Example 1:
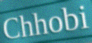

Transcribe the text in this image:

Chhobi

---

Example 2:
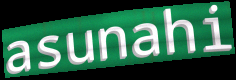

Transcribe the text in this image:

asunahi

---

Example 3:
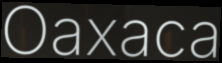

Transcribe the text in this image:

Oaxaca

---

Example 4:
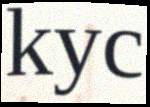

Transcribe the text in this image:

kyc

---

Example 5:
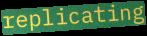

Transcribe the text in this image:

replicating